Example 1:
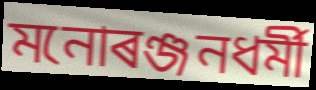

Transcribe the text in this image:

মনোৰঞ্জনধৰ্মী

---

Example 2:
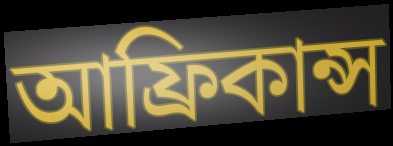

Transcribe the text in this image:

আফ্ৰিকান্স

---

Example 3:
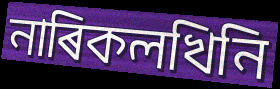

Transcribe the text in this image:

নাৰিকলখিনি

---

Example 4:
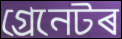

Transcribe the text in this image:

গ্ৰেনেটৰ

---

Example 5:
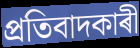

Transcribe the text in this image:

প্ৰতিবাদকাৰী